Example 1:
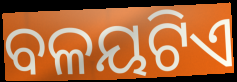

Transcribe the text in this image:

ବଳୟଟିଏ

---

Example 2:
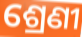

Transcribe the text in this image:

ଶ୍ରେଣୀ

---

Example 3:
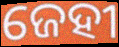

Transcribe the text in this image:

ଜେହୀ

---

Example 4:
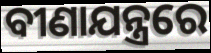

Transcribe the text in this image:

ବୀଣାଯନ୍ତ୍ରରେ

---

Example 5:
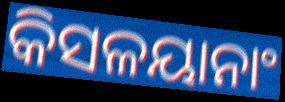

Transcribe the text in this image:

କିସଳୟାନାଂ